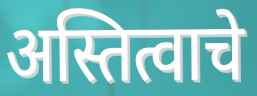
अस्तित्वाचे